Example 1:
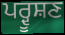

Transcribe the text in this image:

ਪਰ੍ਦੂਸ਼ਣ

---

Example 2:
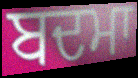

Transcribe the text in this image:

ਬਦਮਾ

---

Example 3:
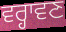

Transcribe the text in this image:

ਵਰ੍ਹਾਵਣ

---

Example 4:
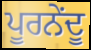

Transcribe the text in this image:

ਪੂਰਨੇਂਦੂ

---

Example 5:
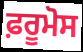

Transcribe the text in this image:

ਫ਼ਰੂਮੋਸ